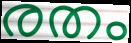
രതം